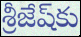
శ్రీజేష్‌కు